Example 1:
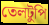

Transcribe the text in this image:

তেলটুপি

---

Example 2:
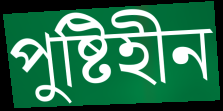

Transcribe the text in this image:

পুষ্টিহীন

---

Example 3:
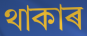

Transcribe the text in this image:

থাকাৰ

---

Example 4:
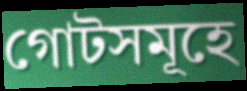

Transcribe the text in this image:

গোটসমূহে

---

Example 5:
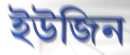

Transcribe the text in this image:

ইউজিন